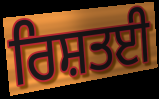
ਰਿਸ਼ਤਈ